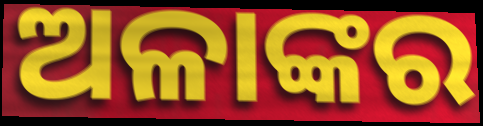
ଅଳାଙ୍କର